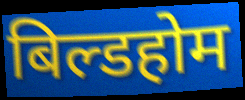
बिल्डहोम